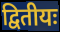
द्वितीयः